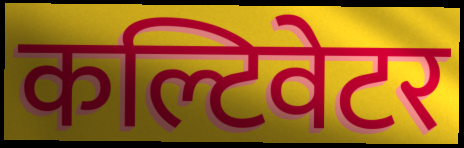
कल्टिवेटर